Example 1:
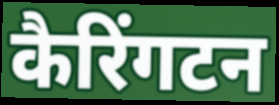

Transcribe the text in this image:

कैरिंगटन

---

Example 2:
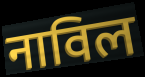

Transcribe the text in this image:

नाविल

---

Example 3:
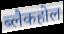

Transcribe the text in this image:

ब्लैकहोल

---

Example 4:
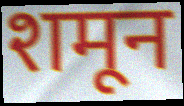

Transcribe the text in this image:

शमून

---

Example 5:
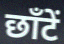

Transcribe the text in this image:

छाँटें